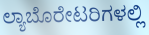
ಲ್ಯಾಬೊರೇಟರಿಗಳಲ್ಲಿ